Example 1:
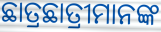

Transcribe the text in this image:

ଛାତ୍ରଛାତ୍ରୀମାନଙ୍କ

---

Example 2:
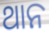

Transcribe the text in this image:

ଥାନ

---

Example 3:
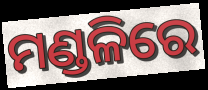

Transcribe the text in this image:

ମଣ୍ଡଳିରେ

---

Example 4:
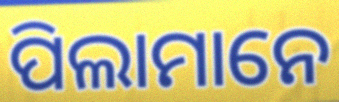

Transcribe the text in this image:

ପିଲାମାନେ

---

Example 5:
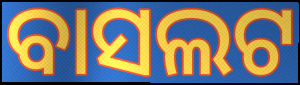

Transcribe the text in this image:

ବାସଲଟ